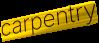
carpentry